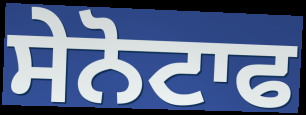
ਸੇਨੋਟਾਫ